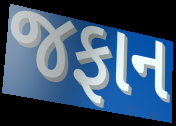
જફાન